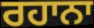
ਰਹਾਨਾ